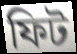
ফিট